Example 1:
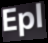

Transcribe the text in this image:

Epl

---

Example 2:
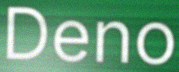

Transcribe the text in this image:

Deno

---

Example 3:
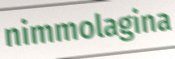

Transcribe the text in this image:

nimmolagina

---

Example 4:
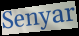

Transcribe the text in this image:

Senyar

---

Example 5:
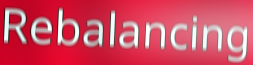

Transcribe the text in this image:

Rebalancing